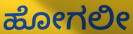
ಹೋಗಲೀ